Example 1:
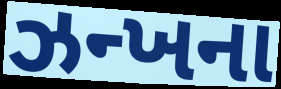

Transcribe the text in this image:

ઝન્ખના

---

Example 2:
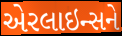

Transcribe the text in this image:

એરલાઇન્સને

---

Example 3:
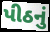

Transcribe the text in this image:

પીઠનું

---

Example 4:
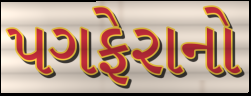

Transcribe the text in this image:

પગફેરાનો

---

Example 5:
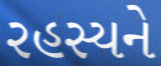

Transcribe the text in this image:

રહસ્યને